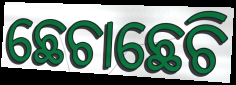
ଛେଚାଛେଚି